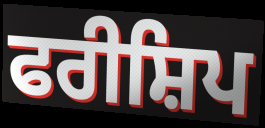
ਫਰੀਸ਼ਿਪ